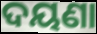
ଦୟଣା